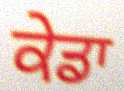
ਕੇਡਾ